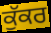
ਕੁੱਕਰ